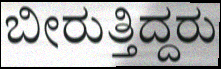
ಬೀರುತ್ತಿದ್ದರು